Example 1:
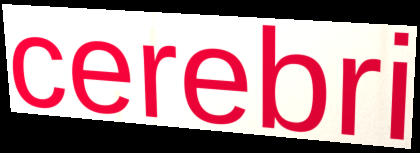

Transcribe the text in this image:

cerebri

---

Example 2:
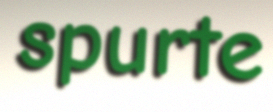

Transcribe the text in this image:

spurte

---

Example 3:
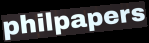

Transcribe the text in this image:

philpapers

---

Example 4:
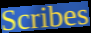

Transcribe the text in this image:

Scribes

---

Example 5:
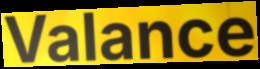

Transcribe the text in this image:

Valance